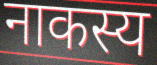
नाकस्य